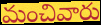
మంచివారు